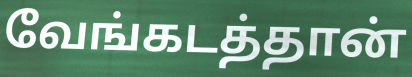
வேங்கடத்தான்